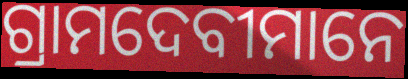
ଗ୍ରାମଦେବୀମାନେ